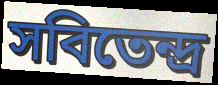
সবিতেন্দ্র